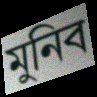
মুনিব